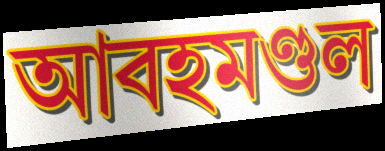
আবহমণ্ডল